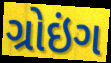
ગ્રોઇંગ